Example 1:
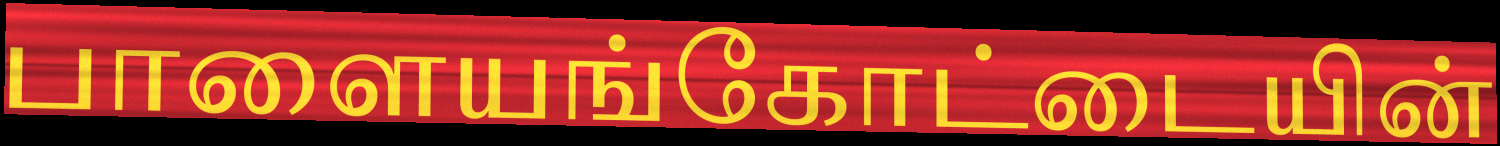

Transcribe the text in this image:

பாளையங்கோட்டையின்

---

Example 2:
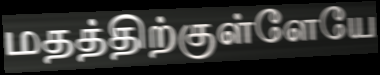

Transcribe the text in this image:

மதத்திற்குள்ளேயே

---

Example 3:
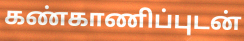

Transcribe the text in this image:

கண்காணிப்புடன்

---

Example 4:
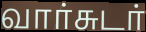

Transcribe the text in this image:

வார்சுடர்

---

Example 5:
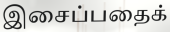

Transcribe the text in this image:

இசைப்பதைக்